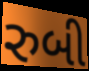
રુબી